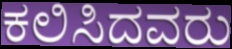
ಕಲಿಸಿದವರು